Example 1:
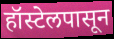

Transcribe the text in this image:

हॉस्टेलपासून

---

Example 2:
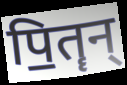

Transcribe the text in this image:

पि॒तॄन्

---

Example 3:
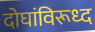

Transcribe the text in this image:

दोघांविरूध्द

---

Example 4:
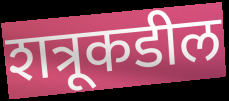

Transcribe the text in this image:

शत्रूकडील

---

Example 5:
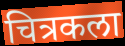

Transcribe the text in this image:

चित्रकला